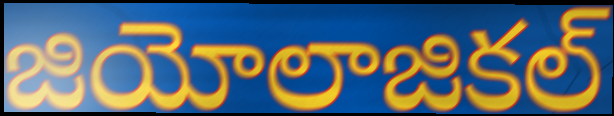
జియోలాజికల్